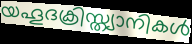
യഹൂദക്രിസ്ത്യാനികൾ